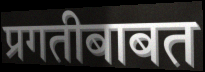
प्रगतीबाबत